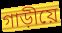
গাড়ীয়ে